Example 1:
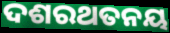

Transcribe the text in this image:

ଦଶରଥତନୟ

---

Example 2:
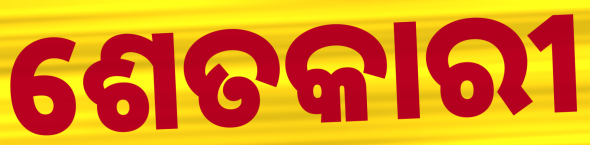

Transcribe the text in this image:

ଶେତକାରୀ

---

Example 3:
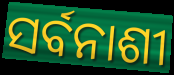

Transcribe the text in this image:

ସର୍ବନାଶୀ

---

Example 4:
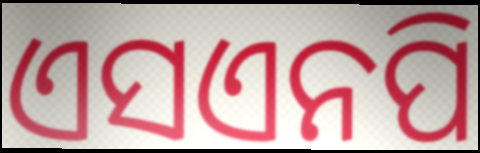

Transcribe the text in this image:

ଏସଏନପି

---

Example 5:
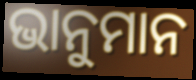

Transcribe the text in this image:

ଭାନୁମାନ